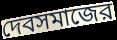
দেবসমাজের